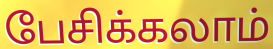
பேசிக்கலாம்